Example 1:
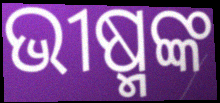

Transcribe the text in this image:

ଭୀଷ୍ମଙ୍କ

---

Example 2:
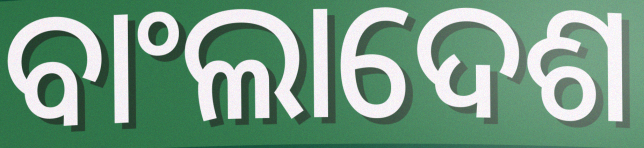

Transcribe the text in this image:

ବାଂଲାଦେଶ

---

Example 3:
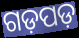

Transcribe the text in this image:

ଗଡ଼ପଡ଼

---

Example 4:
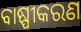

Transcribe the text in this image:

ବାଷ୍ପୀକରଣ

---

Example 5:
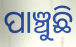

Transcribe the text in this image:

ପାଞ୍ଚୁଛି